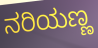
ನರಿಯಣ್ಣ